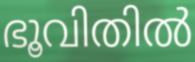
ഭൂവിതിൽ